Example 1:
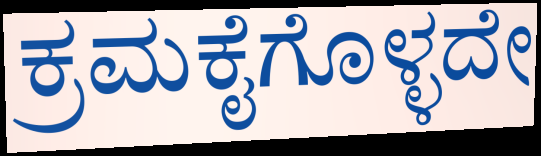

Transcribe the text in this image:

ಕ್ರಮಕೈಗೊಳ್ಳದೇ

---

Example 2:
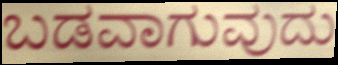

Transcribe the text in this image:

ಬಡವಾಗುವುದು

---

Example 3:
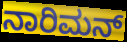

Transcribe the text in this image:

ನಾರಿಮನ್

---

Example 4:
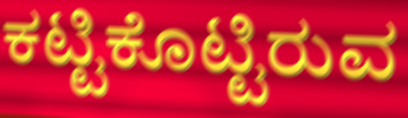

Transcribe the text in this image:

ಕಟ್ಟಿಕೊಟ್ಟಿರುವ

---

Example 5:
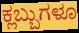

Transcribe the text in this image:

ಕ್ಲಬ್ಬುಗಳೂ